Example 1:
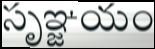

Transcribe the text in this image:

సృఞ్జయం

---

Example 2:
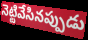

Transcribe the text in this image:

నెట్టివేసినప్పుడు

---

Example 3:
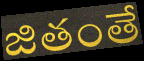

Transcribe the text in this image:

జితంతే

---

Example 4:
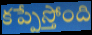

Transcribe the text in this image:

కప్పేస్తోంది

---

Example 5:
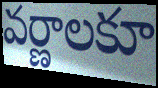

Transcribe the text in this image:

వర్ణాలకూ